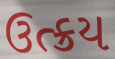
ઉત્ક્રય